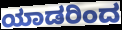
ಯಾಡರಿಂದ